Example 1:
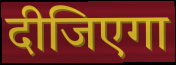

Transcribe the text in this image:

दीजिएगा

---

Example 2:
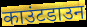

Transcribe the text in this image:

काउंटडाउन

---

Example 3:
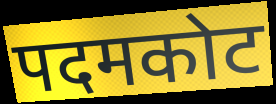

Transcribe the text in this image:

पदमकोट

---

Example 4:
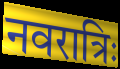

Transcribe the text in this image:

नवरात्रिः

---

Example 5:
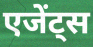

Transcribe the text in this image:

एजेंट्स